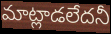
మాట్లాడలేదనీ